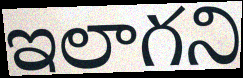
ఇలాగని